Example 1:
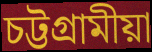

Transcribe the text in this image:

চট্টগ্ৰামীয়া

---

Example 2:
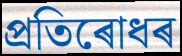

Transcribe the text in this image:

প্ৰতিৰোধৰ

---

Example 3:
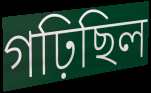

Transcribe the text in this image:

গঢ়িছিল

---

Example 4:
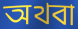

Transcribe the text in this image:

অথবা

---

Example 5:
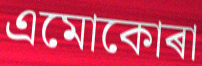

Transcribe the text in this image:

এমোকোৰা